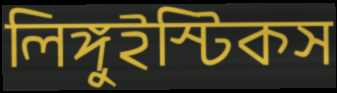
লিঙ্গুইস্টিকস